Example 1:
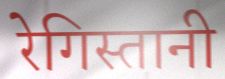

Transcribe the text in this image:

रेगिस्तानी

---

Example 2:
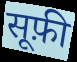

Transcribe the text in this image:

सूफ़ी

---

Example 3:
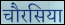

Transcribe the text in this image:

चौरसिया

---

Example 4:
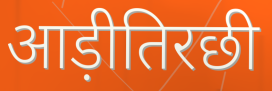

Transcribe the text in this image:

आड़ीतिरछी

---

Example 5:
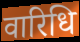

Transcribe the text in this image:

वारिधि